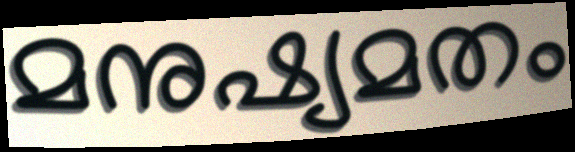
മനുഷ്യമതം